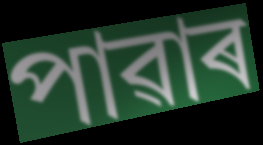
পাৱাৰ